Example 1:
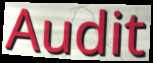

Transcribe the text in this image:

Audit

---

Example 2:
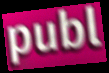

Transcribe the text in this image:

publ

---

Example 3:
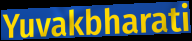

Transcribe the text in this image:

Yuvakbharati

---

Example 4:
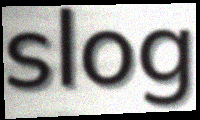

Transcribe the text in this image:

slog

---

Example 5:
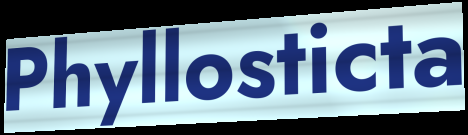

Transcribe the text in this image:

Phyllosticta